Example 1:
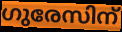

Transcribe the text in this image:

ഗുരേസിന്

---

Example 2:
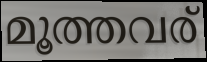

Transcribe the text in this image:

മൂത്തവര്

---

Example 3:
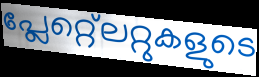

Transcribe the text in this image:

പ്ലേറ്റ്ലെറ്റുകളുടെ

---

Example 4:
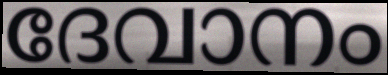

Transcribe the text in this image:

ദേവാനം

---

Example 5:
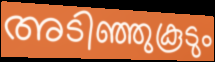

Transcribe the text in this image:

അടിഞ്ഞുകൂടും